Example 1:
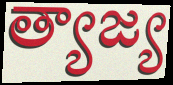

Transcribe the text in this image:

త్యాజ్య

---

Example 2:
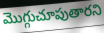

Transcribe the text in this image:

మొగ్గుచూపుతారని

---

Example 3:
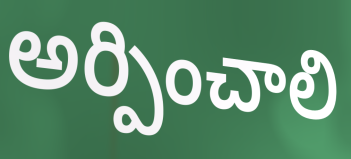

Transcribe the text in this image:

అర్పించాలి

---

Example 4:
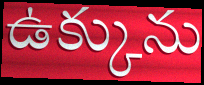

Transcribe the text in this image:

ఉక్కును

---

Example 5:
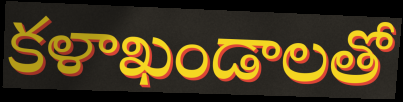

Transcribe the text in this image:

కళాఖండాలతో